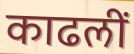
काढलीं